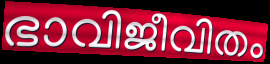
ഭാവിജീവിതം